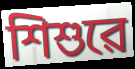
শিশুৱে